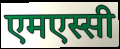
एमएस्सी